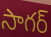
సాగర్